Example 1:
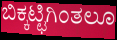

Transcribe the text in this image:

ಬಿಕ್ಕಟ್ಟಿಗಿಂತಲೂ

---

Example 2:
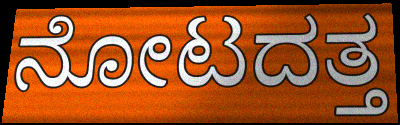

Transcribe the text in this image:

ನೋಟದತ್ತ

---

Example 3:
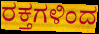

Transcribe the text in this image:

ರಕ್ತಗಳಿಂದ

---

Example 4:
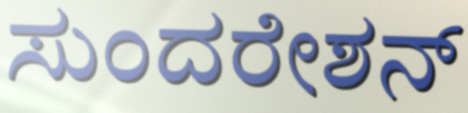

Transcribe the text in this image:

ಸುಂದರೇಶನ್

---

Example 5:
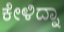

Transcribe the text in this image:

ಕೇಳಿದ್ನಾ